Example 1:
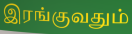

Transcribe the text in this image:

இரங்குவதும்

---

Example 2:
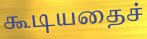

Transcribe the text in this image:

கூடியதைச்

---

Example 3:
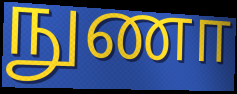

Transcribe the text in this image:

நுணா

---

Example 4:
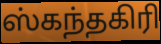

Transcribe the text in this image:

ஸ்கந்தகிரி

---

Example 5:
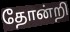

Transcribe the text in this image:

தோன்றி